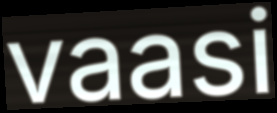
vaasi